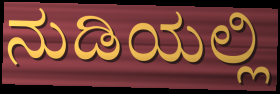
ನುಡಿಯಲ್ಲಿ